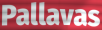
Pallavas